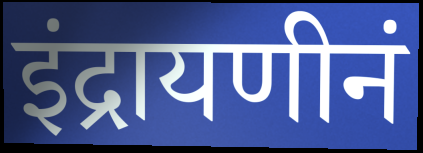
इंद्रायणीनं